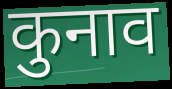
कुनाव